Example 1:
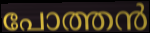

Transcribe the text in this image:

പോത്തൻ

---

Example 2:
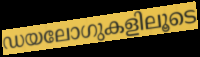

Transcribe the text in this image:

ഡയലോഗുകളിലൂടെ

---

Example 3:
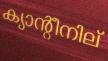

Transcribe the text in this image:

ക്യാന്റീനില്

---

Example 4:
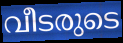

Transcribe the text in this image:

വീടരുടെ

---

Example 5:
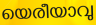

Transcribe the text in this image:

യെരീയാവു